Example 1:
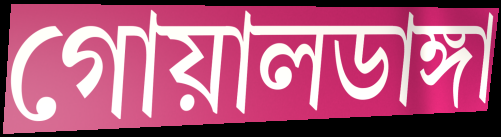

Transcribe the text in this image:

গোয়ালডাঙ্গা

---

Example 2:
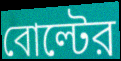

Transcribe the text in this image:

বোল্টের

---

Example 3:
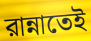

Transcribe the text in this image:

রান্নাতেই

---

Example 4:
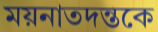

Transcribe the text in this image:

ময়নাতদন্তকে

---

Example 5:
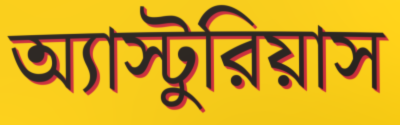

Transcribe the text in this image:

অ্যাস্টুরিয়াস